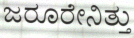
ಜರೂರೇನಿತ್ತು